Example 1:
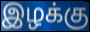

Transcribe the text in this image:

இழக்கு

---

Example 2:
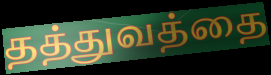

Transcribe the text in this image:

தத்துவத்தை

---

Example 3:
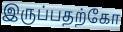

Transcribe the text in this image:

இருப்பதற்கோ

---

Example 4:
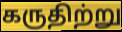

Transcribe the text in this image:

கருதிற்று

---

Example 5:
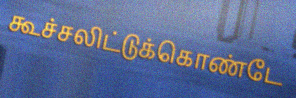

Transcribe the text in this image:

கூச்சலிட்டுக்கொண்டே